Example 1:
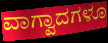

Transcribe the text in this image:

ವಾಗ್ವಾದಗಳೂ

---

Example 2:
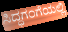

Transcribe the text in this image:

ಸಿದ್ಧಗಂಗೆಯಲ್ಲಿ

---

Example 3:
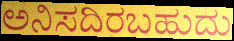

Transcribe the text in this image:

ಅನಿಸದಿರಬಹುದು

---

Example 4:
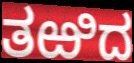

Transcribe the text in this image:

ತಱಿದ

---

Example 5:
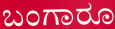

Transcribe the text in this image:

ಬಂಗಾರೂ